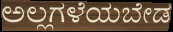
ಅಲ್ಲಗಳೆಯಬೇಡ